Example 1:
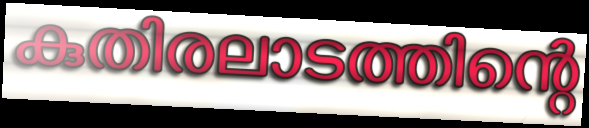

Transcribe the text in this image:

കുതിരലാടത്തിന്റെ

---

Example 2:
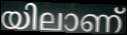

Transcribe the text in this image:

യിലാണ്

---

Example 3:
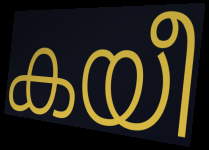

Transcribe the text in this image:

കയീ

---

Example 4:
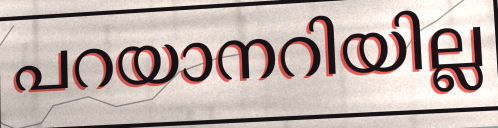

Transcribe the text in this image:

പറയാനറിയില്ല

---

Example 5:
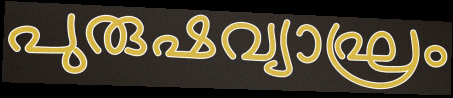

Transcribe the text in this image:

പുരുഷവ്യാഘ്രം